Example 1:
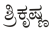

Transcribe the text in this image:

ಶ್ರಿಕೃಷ್ಣ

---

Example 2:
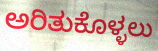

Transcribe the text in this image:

ಅರಿತುಕೊಳ್ಳಲು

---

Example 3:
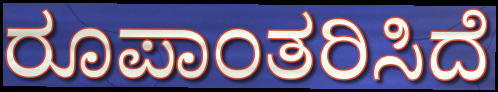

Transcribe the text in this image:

ರೂಪಾಂತರಿಸಿದೆ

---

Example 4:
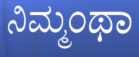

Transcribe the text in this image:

ನಿಮ್ಮಂಥಾ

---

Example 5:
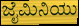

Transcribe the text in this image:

ಜೈಮಿನಿಯು